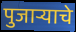
पुजाऱ्याचे